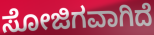
ಸೋಜಿಗವಾಗಿದೆ